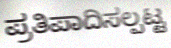
ಪ್ರತಿಪಾದಿಸಲ್ಪಟ್ಟ